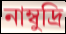
নাম্বুদ্রি